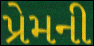
પ્રેમની